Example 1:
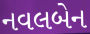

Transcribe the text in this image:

નવલબેન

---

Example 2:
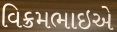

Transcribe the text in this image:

વિક્રમભાઇએ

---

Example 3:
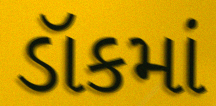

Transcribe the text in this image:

ડૉકમાં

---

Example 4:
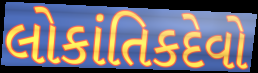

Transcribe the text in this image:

લોકાંતિકદેવો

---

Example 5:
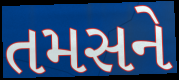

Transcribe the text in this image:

તમસને